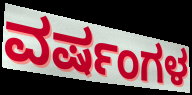
ವರ್ಷಂಗಳ